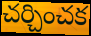
చర్చించక